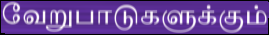
வேறுபாடுகளுக்கும்